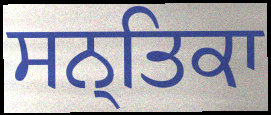
ਸਨ੍ਤਿਕਾ